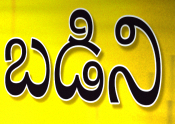
బడిని